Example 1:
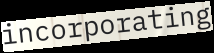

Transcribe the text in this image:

incorporating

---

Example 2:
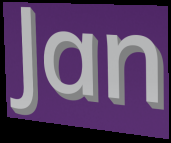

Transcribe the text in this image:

Jan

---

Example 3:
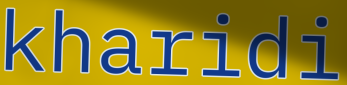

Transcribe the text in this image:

kharidi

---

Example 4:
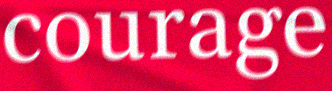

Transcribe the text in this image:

courage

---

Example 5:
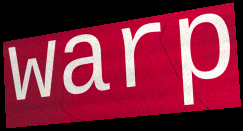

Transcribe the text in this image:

warp